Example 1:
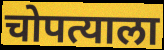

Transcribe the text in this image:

चोपत्याला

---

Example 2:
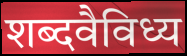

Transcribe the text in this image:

शब्दवैविध्य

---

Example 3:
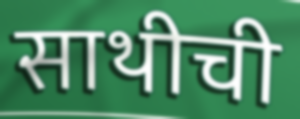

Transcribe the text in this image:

साथीची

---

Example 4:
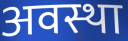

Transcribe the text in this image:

अवस्था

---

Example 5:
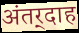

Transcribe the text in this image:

अंतर्दाह